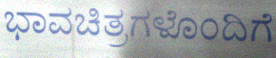
ಭಾವಚಿತ್ರಗಳೊಂದಿಗೆ